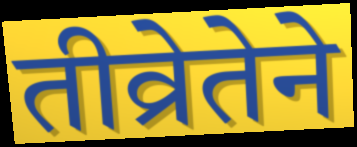
तीव्रेतेने